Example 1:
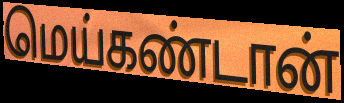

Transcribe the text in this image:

மெய்கண்டான்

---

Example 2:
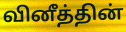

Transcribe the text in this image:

வினீத்தின்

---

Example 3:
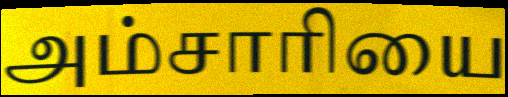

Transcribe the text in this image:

அம்சாரியை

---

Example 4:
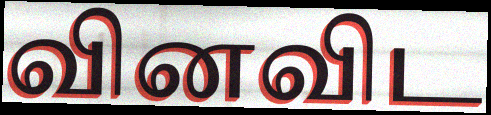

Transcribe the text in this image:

வினவிட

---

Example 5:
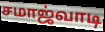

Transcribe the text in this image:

சமாஜ்வாடி